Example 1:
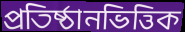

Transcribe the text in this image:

প্রতিষ্ঠানভিত্তিক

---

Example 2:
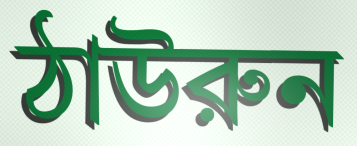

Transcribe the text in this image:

ঠাউরুন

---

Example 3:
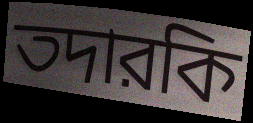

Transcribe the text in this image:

তদারকি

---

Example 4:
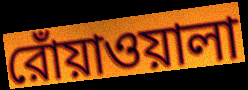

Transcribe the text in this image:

রোঁয়াওয়ালা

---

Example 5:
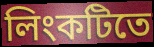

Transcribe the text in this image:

লিংকটিতে